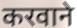
करवाने